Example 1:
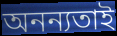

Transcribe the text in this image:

অনন্যতাই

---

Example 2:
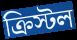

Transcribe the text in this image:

ক্রিস্টল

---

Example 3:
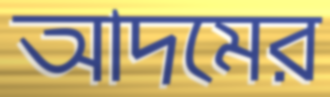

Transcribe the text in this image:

আদমের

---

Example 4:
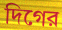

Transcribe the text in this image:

দিগের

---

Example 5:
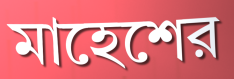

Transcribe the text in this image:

মাহেশের